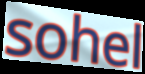
sohel